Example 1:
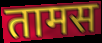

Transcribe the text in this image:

तामस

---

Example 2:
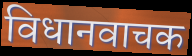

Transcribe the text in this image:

विधानवाचक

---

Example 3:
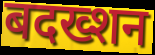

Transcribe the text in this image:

बदख्शन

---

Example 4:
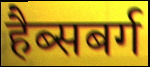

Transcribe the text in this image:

हैब्सबर्ग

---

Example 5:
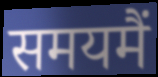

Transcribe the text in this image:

समयमैं